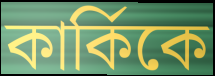
কার্কিকে